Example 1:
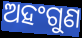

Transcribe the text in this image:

ଅହଂଗୁଣ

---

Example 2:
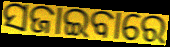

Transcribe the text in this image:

ସଜାଇବାରେ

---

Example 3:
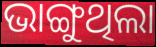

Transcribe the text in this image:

ଭାଙ୍ଗୁଥିଲା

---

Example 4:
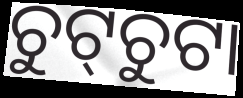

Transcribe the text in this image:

ଚୁଟ୍‌ଚୁଟା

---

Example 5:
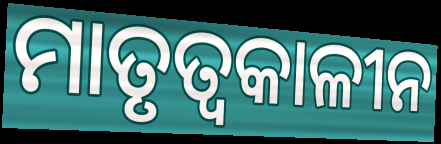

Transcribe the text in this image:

ମାତୃତ୍ୱକାଳୀନ